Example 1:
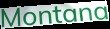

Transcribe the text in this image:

Montana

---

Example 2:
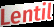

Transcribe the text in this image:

Lentil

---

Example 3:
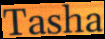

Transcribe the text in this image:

Tasha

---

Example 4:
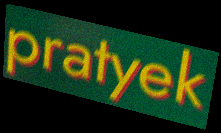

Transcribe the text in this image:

pratyek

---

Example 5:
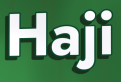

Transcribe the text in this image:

Haji